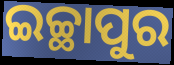
ଇଚ୍ଛାପୁର